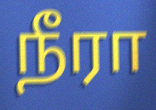
நீரா